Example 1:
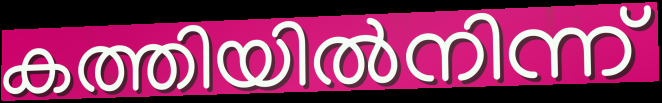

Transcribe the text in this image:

കത്തിയിൽനിന്ന്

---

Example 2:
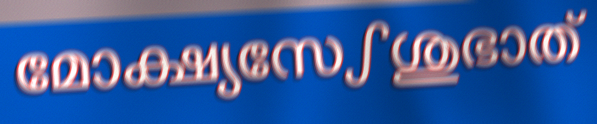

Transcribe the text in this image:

മോക്ഷ്യസേഽശുഭാത്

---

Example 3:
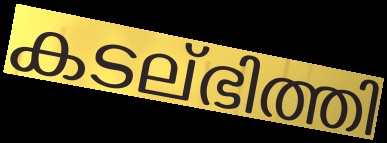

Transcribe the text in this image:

കടല്ഭിത്തി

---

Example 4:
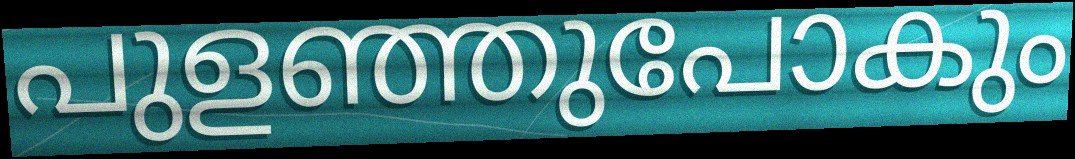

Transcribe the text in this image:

പുളഞ്ഞുപോകും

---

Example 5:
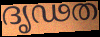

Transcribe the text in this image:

ദൃഢത